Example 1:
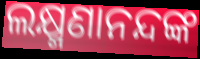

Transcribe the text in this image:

ଲକ୍ଷ୍ମଣାନନ୍ଦଙ୍କ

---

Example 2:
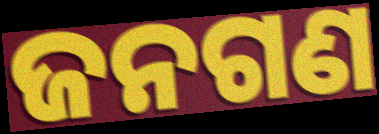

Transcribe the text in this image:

ଜନଗଣ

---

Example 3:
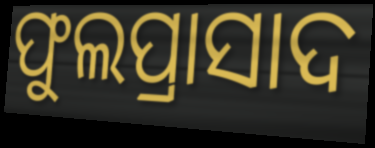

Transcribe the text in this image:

ଫୁଲପ୍ରାସାଦ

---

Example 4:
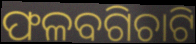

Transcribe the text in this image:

ଫଳବଗିଚାଟି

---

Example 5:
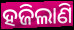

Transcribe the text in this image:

ହଜିଲାଣି